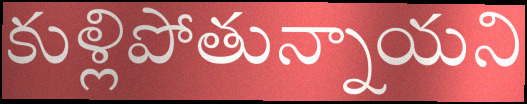
కుళ్లిపోతున్నాయని